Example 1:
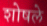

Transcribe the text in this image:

शोषले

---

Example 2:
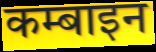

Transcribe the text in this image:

कम्बाइन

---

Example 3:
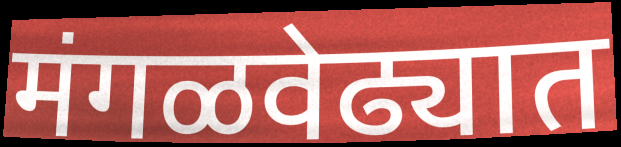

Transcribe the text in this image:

मंगळवेढ्यात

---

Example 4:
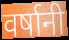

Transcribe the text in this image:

वर्षानी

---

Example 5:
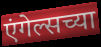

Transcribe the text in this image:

एंगेल्सच्या